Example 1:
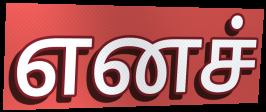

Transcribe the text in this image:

எனச்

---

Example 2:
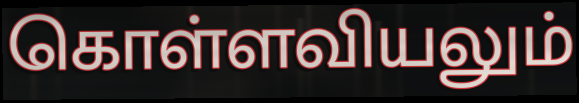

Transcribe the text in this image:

கொள்ளவியலும்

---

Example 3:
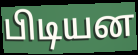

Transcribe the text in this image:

பிடியன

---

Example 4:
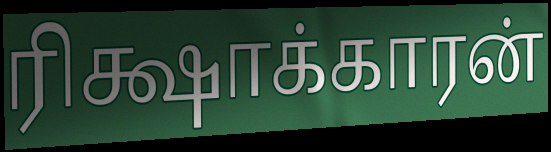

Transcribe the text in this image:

ரிக்ஷாக்காரன்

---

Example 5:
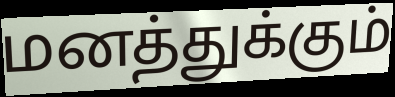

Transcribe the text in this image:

மனத்துக்கும்